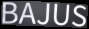
BAJUS